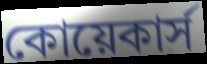
কোয়েকার্স